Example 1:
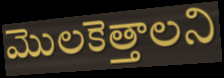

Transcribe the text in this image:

మొలకెత్తాలని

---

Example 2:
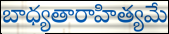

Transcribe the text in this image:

బాధ్యతారాహిత్యమే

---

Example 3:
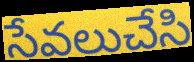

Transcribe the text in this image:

సేవలుచేసి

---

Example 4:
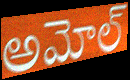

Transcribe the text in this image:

అమోల్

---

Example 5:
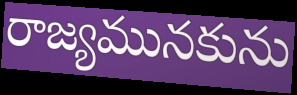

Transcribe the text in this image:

రాజ్యమునకును